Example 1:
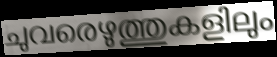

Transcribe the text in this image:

ചുവരെഴുത്തുകളിലും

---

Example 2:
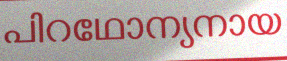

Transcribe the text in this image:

പിറഥോന്യനായ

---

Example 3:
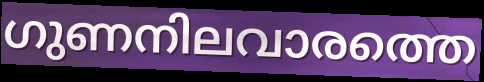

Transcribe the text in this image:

ഗുണനിലവാരത്തെ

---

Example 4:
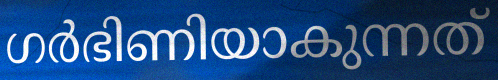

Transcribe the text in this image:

ഗർഭിണിയാകുന്നത്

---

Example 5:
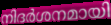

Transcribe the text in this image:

നിദർശനമായി